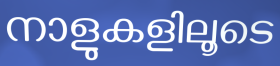
നാളുകളിലൂടെ